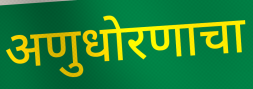
अणुधोरणाचा